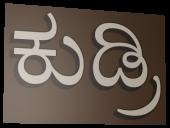
ಕುಡ್ರಿ